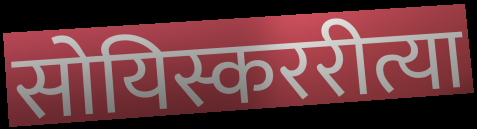
सोयिस्कररीत्या